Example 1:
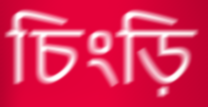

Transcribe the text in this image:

চিংড়ি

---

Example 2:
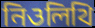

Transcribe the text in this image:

নিওলিথি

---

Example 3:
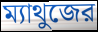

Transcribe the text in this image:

ম্যাথুজের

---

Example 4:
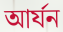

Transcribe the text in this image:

আর্যন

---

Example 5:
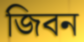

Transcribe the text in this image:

জিবন